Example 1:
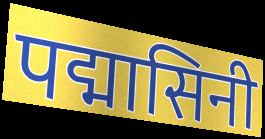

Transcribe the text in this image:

पद्मासिनी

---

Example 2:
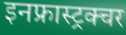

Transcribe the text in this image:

इनफ्रास्ट्रक्चर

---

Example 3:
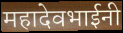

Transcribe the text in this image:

महादेवभाईनी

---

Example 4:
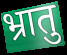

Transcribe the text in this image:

भ्रातु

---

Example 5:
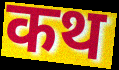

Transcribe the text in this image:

कथ